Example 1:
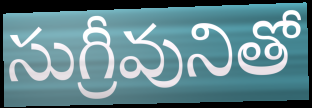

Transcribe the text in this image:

సుగ్రీవునితో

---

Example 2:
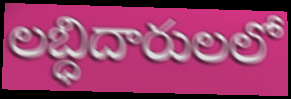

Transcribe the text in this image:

లబ్ధిదారులలో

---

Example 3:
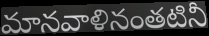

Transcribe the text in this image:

మానవాళినంతటినీ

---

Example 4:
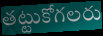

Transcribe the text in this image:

తట్టుకోగలరు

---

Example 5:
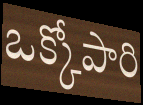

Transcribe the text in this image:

ఒక్కోపారి